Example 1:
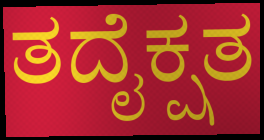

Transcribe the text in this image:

ತದೈಕ್ಷತ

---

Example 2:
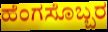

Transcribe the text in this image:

ಹೆಂಗಸೊಬ್ಬರ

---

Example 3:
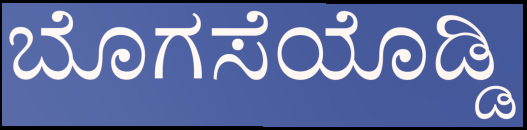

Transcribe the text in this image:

ಬೊಗಸೆಯೊಡ್ಡಿ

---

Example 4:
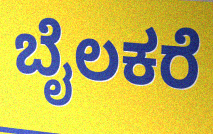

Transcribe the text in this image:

ಬೈಲಕರೆ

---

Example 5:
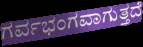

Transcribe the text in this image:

ಗರ್ವಭಂಗವಾಗುತ್ತದೆ